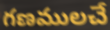
గణములచే